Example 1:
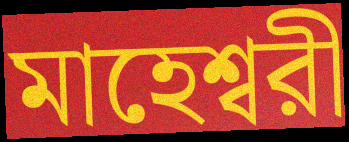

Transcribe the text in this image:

মাহেশ্বরী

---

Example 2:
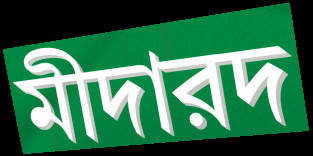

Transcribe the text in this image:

মীদারদ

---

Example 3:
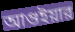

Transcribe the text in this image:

আগুইয়ার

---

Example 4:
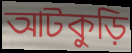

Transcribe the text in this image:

আটকুড়ি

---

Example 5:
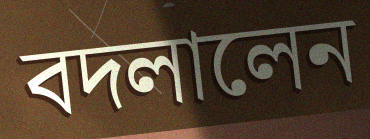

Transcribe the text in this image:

বদলালেন